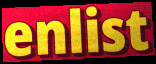
enlist